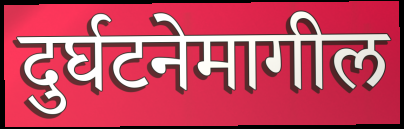
दुर्घटनेमागील